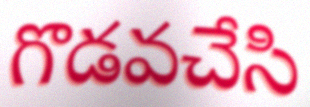
గొడవచేసి